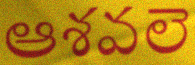
ఆశవలె